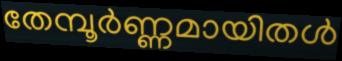
തേമ്പൂർണ്ണമായിതൾ